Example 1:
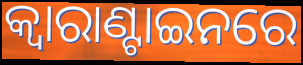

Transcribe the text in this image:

କ୍ବାରାଣ୍ଟାଇନରେ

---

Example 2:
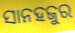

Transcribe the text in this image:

ସାନହଜୁର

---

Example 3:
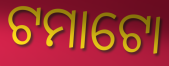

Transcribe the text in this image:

ଟମାଟୋ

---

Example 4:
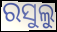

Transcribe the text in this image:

ରସୁଲୁ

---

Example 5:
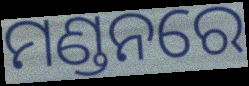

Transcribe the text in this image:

ମଣ୍ଡନରେ